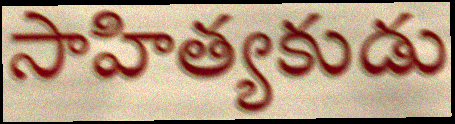
సాహిత్యకుడు